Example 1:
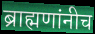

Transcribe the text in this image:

ब्राह्मणांनीच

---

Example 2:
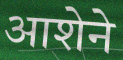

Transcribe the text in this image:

आशेने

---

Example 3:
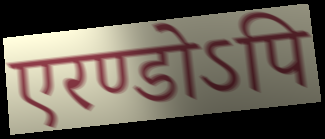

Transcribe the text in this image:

एरण्डोऽपि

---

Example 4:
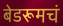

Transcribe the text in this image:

बेडरूमचं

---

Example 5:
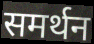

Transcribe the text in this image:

समर्थन